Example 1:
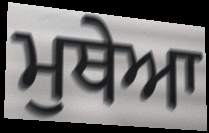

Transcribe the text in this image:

ਮੁਥੇਆ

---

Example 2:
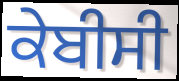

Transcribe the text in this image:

ਕੇਬੀਸੀ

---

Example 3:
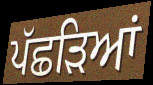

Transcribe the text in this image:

ਪੱਛੜਿਆਂ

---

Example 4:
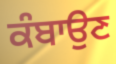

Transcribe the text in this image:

ਕੰਬਾਉਣ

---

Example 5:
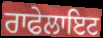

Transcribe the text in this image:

ਰਾਫੇਲਾਇਟ